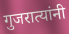
गुजरात्यांनी